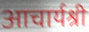
आचार्यश्री